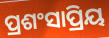
ପ୍ରଶଂସାପ୍ରିୟ